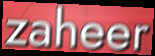
zaheer